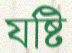
যষ্টি